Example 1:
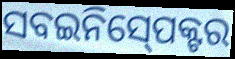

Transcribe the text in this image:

ସବଇନିସ୍‍ପେକ୍ଟର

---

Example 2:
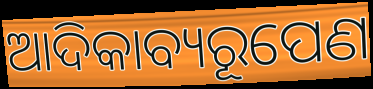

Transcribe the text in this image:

ଆଦିକାବ୍ୟରୂପେଣ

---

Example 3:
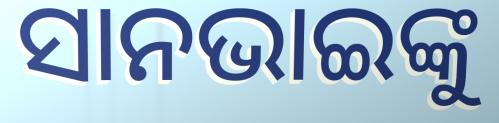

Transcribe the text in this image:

ସାନଭାଇଙ୍କୁ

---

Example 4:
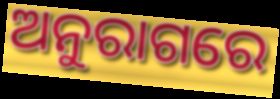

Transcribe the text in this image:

ଅନୁରାଗରେ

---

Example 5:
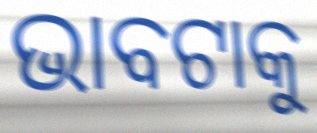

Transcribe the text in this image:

ଭାବଟାକୁ